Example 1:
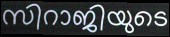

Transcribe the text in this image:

സിറാജിയുടെ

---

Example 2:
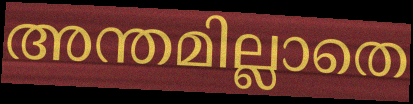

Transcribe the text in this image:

അന്തമില്ലാതെ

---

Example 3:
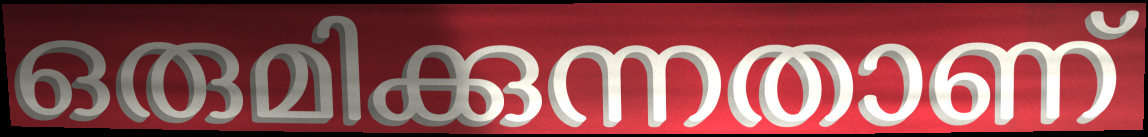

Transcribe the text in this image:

ഒരുമിക്കുന്നതാണ്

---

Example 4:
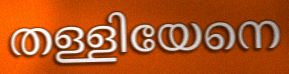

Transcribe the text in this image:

തള്ളിയേനെ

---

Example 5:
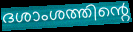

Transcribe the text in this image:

ദശാംശത്തിന്റെ